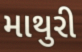
માથુરી